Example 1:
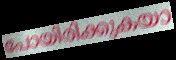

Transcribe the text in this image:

പോയിരിക്കുകയാ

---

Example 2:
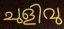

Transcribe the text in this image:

ചുളിവു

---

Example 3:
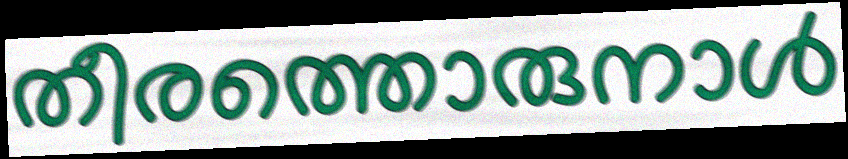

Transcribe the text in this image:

തീരത്തൊരുനാൾ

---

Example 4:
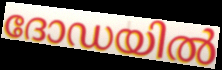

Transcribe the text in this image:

ദോഡയിൽ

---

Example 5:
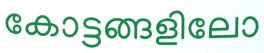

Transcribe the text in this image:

കോട്ടങ്ങളിലോ